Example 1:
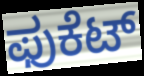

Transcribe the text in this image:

ಫುಕೆಟ್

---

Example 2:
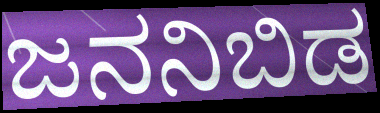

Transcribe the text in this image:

ಜನನಿಬಿಡ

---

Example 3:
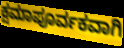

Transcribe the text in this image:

ಕ್ಷಮಾಪೂರ್ವಕವಾಗಿ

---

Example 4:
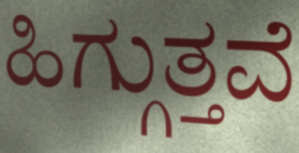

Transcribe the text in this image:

ಹಿಗ್ಗುತ್ತವೆ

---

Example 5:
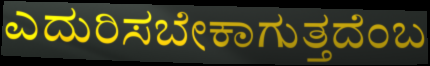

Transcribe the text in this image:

ಎದುರಿಸಬೇಕಾಗುತ್ತದೆಂಬ